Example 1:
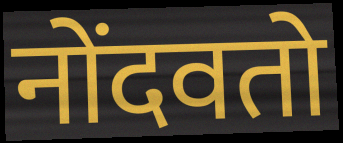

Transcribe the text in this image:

नोंदवतो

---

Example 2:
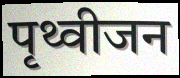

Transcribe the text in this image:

पृथ्वीजन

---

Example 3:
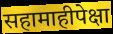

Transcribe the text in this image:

सहामाहीपेक्षा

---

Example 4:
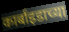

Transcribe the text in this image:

कार्बाइडाच्या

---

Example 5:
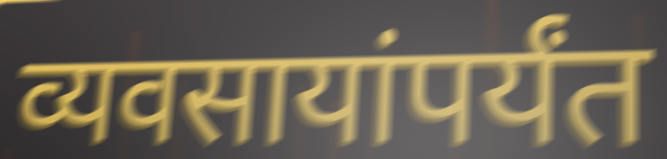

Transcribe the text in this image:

व्यवसायांपर्यंत